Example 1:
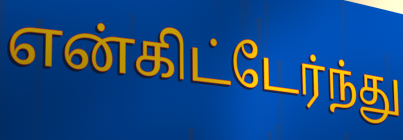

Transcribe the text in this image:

என்கிட்டேர்ந்து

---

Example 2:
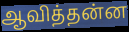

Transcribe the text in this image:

ஆவித்தன்ன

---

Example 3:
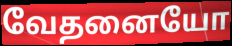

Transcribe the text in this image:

வேதனையோ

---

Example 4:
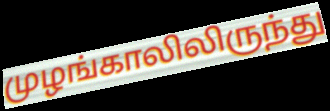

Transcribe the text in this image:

முழங்காலிலிருந்து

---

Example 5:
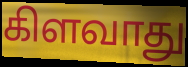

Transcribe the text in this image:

கிளவாது